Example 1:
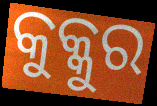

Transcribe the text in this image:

କୁକ୍କୁର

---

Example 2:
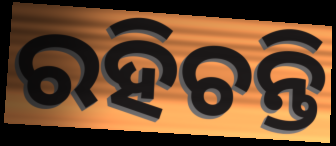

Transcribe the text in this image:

ରହିଚନ୍ତି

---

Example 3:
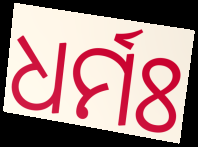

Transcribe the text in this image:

ଧର୍ମଃ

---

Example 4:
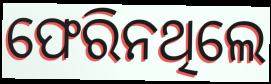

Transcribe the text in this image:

ଫେରିନଥିଲେ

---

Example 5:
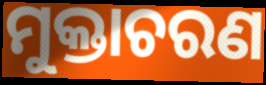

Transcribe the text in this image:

ମୁକ୍ତାଚରଣ